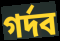
গর্দব